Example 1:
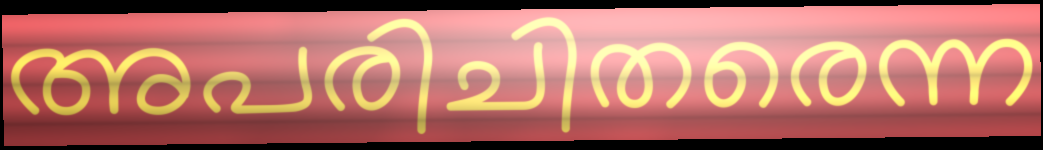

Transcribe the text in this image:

അപരിചിതരെന്ന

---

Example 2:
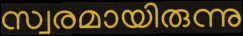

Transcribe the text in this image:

സ്വരമായിരുന്നു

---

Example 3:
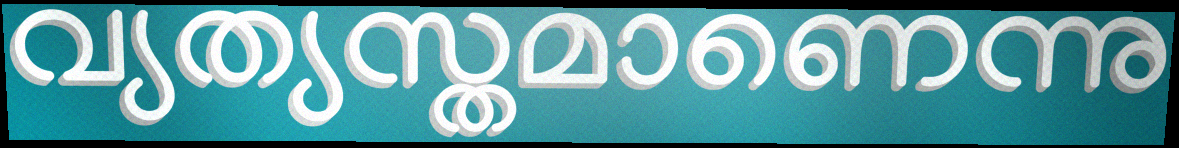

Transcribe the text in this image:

വ്യത്യസ്തമാണെന്നു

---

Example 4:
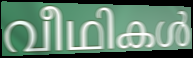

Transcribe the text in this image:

വീഥികൾ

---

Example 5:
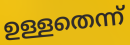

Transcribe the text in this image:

ഉള്ളതെന്ന്